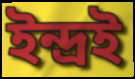
ইন্দ্ৰই